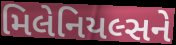
મિલેનિયલ્સને